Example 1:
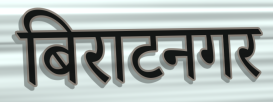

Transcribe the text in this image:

बिराटनगर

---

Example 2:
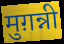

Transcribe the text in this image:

मुग़न्नी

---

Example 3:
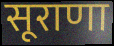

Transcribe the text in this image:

सूराणा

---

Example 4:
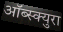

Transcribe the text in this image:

ऑब्स्क्युरा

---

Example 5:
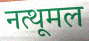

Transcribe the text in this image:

नत्थूमल